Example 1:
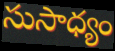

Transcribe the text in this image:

సుసాధ్యం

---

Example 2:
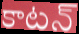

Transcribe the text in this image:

కాటన్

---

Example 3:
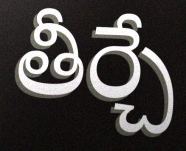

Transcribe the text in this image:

తీర్చే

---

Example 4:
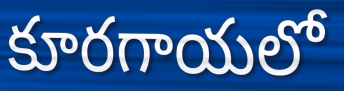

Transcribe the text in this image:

కూరగాయలో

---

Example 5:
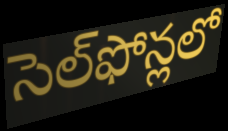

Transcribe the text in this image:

సెల్‌ఫోన్లలో